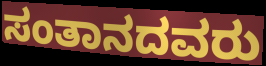
ಸಂತಾನದವರು